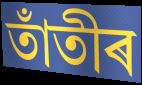
তাঁতীৰ